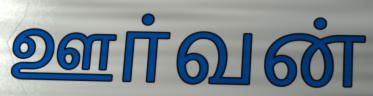
ஊர்வன்